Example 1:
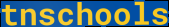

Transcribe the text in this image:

tnschools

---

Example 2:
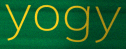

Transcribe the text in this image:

yogy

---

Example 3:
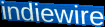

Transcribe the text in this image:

indiewire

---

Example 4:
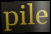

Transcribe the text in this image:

pile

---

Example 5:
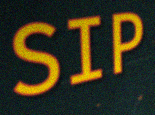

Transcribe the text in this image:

SIP